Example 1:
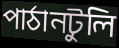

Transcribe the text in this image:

পাঠানটুলি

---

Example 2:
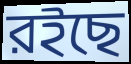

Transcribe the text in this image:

রইছে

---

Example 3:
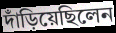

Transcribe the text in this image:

দাঁড়িয়েছিলেন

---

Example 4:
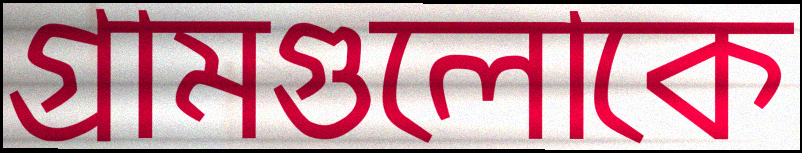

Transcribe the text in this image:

গ্রামগুলোকে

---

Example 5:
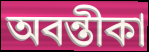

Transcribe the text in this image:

অবন্তীকা